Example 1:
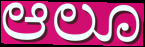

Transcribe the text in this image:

ಆಲೂ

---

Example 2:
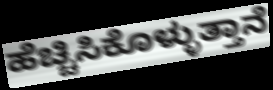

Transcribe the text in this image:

ಹೆಚ್ಚಿಸಿಕೊಳ್ಳುತ್ತಾನೆ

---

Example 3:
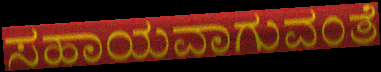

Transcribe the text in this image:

ಸಹಾಯವಾಗುವಂತೆ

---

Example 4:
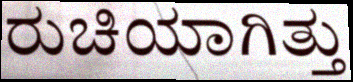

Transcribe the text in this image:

ರುಚಿಯಾಗಿತ್ತು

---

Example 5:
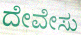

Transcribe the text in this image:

ದೇವೇಸು